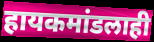
हायकमांडलाही